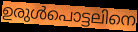
ഉരുൾപൊട്ടലിനെ